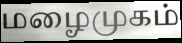
மழைமுகம்